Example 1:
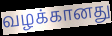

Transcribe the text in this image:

வழக்கானது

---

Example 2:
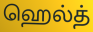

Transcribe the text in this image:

ஹெல்த்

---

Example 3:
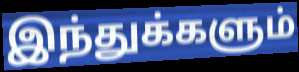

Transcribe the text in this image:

இந்துக்களும்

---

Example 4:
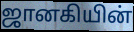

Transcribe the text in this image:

ஜானகியின்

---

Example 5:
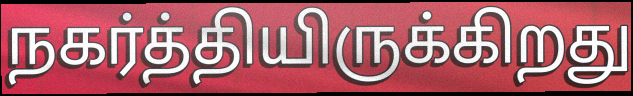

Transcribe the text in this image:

நகர்த்தியிருக்கிறது